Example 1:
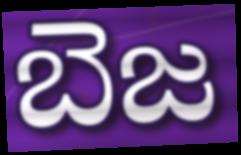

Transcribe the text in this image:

బెజ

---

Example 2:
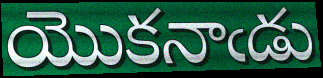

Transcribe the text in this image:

యొకనాఁడు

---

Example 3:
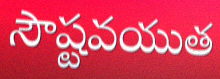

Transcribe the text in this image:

సౌష్టవయుత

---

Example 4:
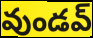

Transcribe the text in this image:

వుండవ్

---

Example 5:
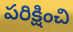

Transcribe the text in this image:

పరిక్షించి